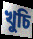
খুচি